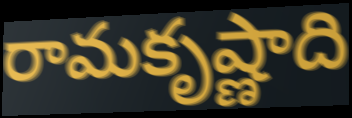
రామకృష్ణాది